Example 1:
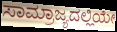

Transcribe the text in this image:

ಸಾಮ್ರಾಜ್ಯದಲ್ಲಿಯೇ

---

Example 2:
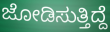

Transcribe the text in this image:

ಜೋಡಿಸುತ್ತಿದ್ದೆ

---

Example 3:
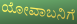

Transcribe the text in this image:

ಯೋವಾಬನಿಗೆ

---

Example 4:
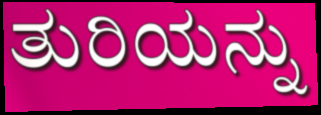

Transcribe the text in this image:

ತುರಿಯನ್ನು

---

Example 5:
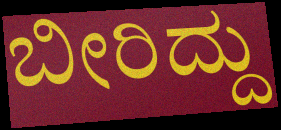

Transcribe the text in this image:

ಬೀರಿದ್ದು